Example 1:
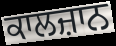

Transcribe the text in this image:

ਕਾਲਜ਼ਾਨ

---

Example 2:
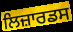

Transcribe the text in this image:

ਲਿਜ਼ਾਰਡਸ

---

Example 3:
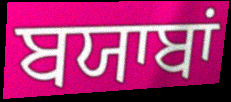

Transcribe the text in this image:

ਬਯਾਬਾਂ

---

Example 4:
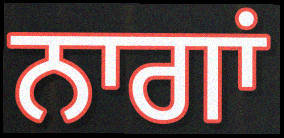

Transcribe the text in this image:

ਨਾਗਾਂ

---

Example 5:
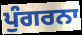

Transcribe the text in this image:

ਪੁੰਗਰਨਾ